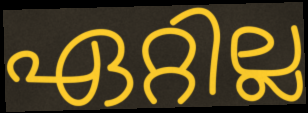
ഏറ്റില്ല